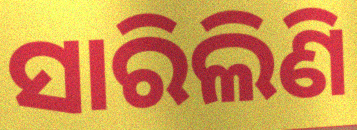
ସାରିଲିଣି